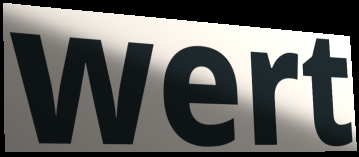
wert